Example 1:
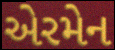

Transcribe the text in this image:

એરમેન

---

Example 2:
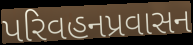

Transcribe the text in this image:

પરિવહનપ્રવાસન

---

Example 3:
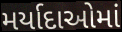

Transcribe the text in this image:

મર્યાદાઓમાં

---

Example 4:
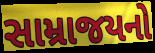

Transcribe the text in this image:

સામ્રાજયનો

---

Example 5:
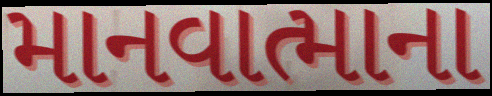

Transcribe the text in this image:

માનવાત્માના